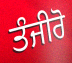
ਤੰਜੀਰੋ